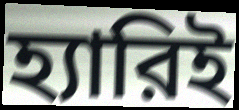
হ্যারিই